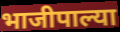
भाजीपाल्या